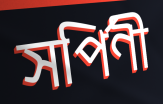
সর্পিণী